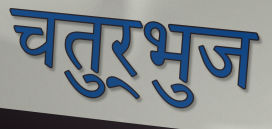
चतुर्भुज